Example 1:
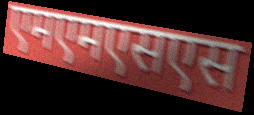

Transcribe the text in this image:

एमएमएसएस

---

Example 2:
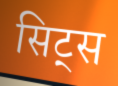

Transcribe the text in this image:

सिट्स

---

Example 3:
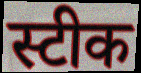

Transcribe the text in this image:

स्टीक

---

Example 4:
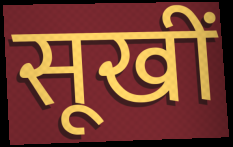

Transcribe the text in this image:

सूखीं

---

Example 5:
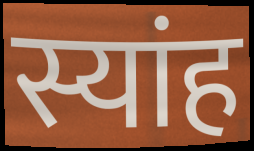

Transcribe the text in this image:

स्यांह